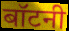
बॉटनी